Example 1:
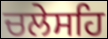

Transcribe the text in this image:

ਚਲੇਸਹਿ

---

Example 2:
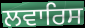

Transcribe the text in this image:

ਲਵਾਰਿਸ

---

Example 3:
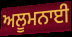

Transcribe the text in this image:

ਅਲੂਮਨਾਈ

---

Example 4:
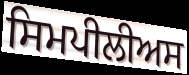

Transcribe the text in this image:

ਸਿਮਪੀਲੀਅਸ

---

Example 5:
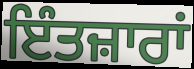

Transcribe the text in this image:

ਇੰਤਜ਼ਾਰਾਂ